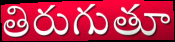
తిరుగుతూ